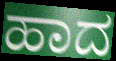
ಹಾದ